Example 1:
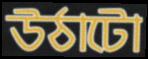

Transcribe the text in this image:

উঠাটো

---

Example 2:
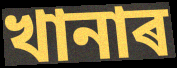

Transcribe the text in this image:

খানাৰ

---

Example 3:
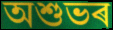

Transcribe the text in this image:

অশুভৰ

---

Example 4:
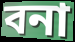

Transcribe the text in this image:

বনা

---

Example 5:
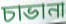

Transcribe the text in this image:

চাভানা